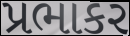
પ્રભાકર